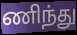
ணிந்து